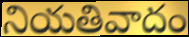
నియతివాదం